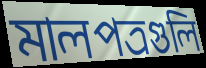
মালপত্রগুলি